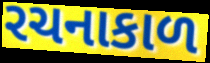
રચનાકાળ